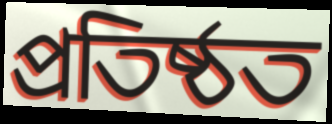
প্রতিষ্ঠত